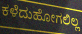
ಕಳೆದುಹೋಗಲಿಲ್ಲ